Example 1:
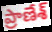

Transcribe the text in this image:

ప్రాణేశ్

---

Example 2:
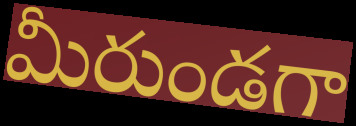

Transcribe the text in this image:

మీరుండగా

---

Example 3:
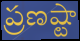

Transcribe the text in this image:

ప్రణష్టా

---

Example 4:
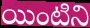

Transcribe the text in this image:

యింటిని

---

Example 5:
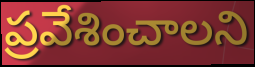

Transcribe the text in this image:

ప్రవేశించాలని